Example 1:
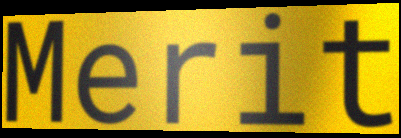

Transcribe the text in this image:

Merit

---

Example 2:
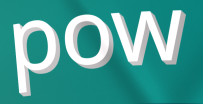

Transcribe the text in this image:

pow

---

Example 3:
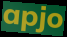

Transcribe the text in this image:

apjo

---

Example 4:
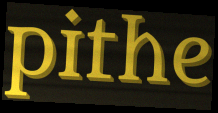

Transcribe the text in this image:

pithe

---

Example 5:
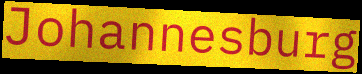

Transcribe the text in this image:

Johannesburg